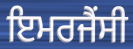
ਇਮਰਜੈਂਸੀ